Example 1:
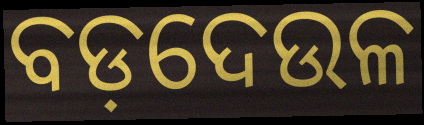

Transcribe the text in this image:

ବଡ଼ଦେଉଳ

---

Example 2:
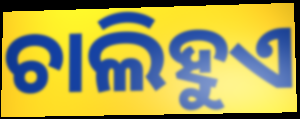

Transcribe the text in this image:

ଚାଲିହୁଏ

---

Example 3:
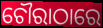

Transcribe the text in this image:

ଚୌରାଠାରେ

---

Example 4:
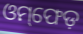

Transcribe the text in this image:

ଓମ୍‌ଫେଡ଼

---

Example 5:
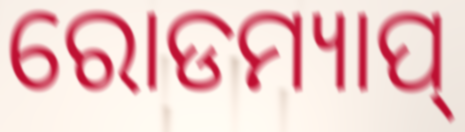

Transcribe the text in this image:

ରୋଡମ୍ୟାପ୍